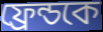
ফ্রেন্ডকে